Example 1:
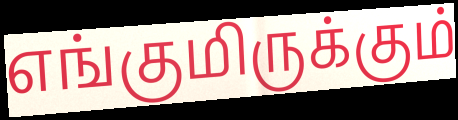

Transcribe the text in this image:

எங்குமிருக்கும்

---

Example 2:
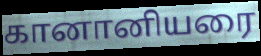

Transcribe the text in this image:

கானானியரை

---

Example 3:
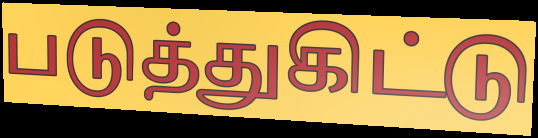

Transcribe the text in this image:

படுத்துகிட்டு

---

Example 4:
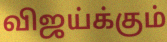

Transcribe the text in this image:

விஜய்க்கும்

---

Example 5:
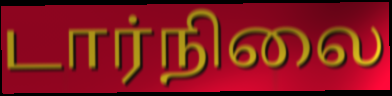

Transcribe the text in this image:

டார்நிலை